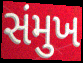
સંમુખ